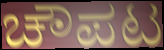
ಚೌಪಟ